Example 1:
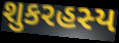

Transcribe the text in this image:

શુકરહસ્ય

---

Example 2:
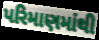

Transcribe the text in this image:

પરિમાણમાંથી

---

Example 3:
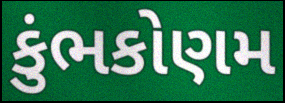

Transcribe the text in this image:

કુંભકોણમ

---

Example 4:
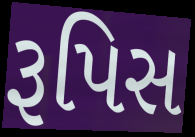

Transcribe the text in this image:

રૂપિસ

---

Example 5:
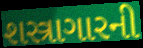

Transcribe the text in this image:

શસ્ત્રાગારની